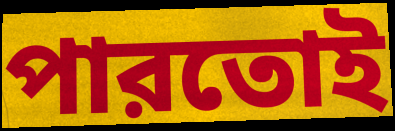
পারতোই